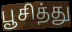
பூசித்து